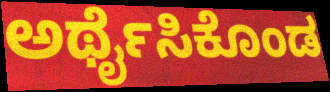
ಅರ್ಥೈಸಿಕೊಂಡ